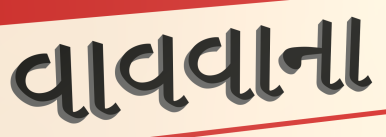
વાવવાના